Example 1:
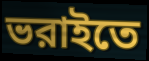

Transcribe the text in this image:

ভরাইতে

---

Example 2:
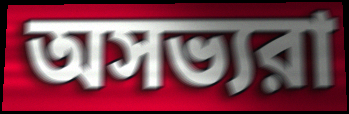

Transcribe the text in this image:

অসভ্যরা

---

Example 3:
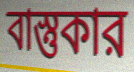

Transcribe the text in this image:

বাস্তুকার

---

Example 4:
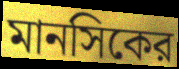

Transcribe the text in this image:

মানসিকের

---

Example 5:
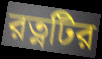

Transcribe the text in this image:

রত্নটির